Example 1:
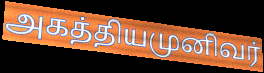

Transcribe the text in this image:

அகத்தியமுனிவர்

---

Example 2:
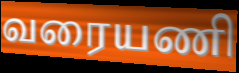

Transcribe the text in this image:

வரையணி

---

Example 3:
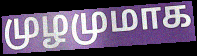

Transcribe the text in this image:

முழமுமாக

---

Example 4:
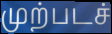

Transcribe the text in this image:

முற்படச்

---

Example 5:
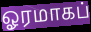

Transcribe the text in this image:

ஓரமாகப்